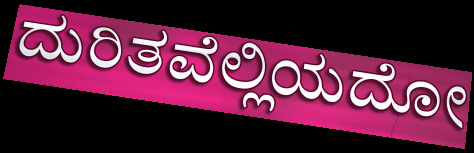
ದುರಿತವೆಲ್ಲಿಯದೋ